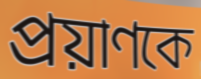
প্রয়াণকে